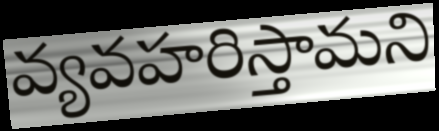
వ్యవహరిస్తామని